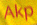
Akp